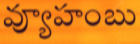
వ్యూహంబు